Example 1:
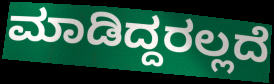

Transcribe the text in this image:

ಮಾಡಿದ್ದರಲ್ಲದೆ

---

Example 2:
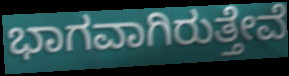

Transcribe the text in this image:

ಭಾಗವಾಗಿರುತ್ತೇವೆ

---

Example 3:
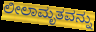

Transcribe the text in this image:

ಲೀಲಾಮೃತವನ್ನು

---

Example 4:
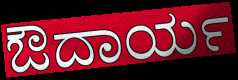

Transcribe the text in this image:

ಔದಾರ್ಯ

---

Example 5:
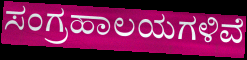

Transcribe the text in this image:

ಸಂಗ್ರಹಾಲಯಗಳಿವೆ